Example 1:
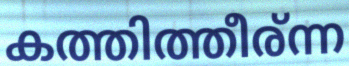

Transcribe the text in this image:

കത്തിത്തീര്ന്ന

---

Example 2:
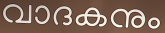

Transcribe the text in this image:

വാദകനും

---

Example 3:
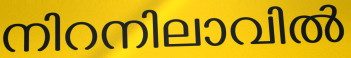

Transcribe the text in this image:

നിറനിലാവിൽ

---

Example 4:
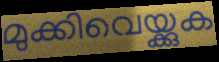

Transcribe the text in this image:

മുക്കിവെയ്ക്കുക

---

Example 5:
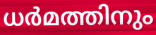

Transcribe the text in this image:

ധർമത്തിനും